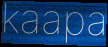
kaapa